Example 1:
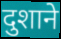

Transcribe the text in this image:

दुशाने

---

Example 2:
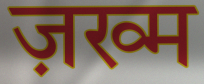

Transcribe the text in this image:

ज़ख्म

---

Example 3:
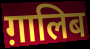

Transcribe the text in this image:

ग़ालिब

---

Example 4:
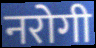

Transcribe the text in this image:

नरोगी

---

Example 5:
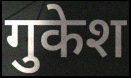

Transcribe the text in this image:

गुकेश